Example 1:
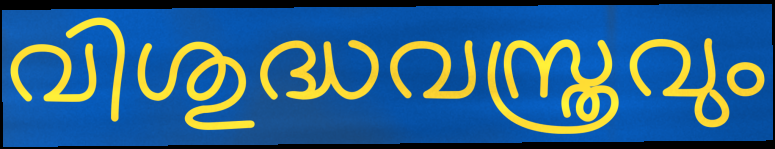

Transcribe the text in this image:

വിശുദ്ധവസ്ത്രവും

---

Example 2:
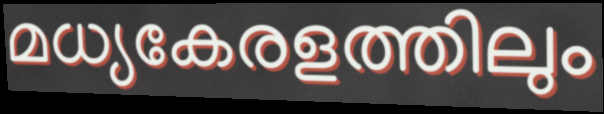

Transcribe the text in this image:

മധ്യകേരളത്തിലും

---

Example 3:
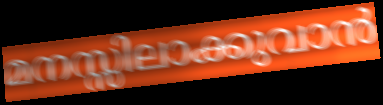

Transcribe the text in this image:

മനസ്സിലാക്കുവാൻ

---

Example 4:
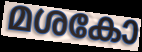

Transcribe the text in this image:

മശകോ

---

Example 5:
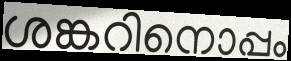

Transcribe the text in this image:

ശങ്കറിനൊപ്പം